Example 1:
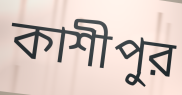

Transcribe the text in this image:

কাশীপুর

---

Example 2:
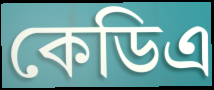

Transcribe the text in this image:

কেডিএ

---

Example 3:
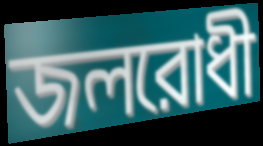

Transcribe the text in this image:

জলরোধী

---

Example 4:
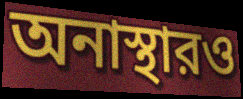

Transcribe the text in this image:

অনাস্থারও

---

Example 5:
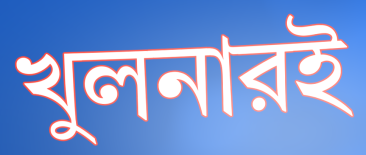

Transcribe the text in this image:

খুলনারই